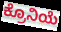
ಕ್ರೊನಿಯೆ